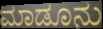
ಮಾಡೂನು